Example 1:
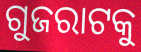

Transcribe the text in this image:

ଗୁଜରାଟକୁ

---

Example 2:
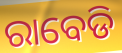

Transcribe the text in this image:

ରାବେଡି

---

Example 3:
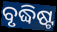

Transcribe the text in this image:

ବୃଦ୍ଧିଷ୍ଟ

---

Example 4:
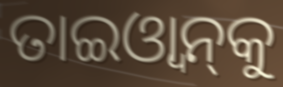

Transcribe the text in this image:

ତାଇଓ୍ବାନ୍‌କୁ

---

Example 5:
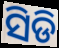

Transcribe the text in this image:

ସିଡି